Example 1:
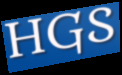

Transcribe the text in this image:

HGS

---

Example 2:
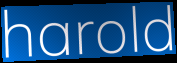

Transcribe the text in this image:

harold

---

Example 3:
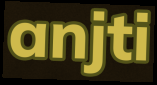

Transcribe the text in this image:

anjti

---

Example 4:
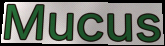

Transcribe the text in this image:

Mucus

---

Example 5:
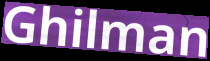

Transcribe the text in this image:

Ghilman